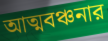
আত্মবঞ্চনার